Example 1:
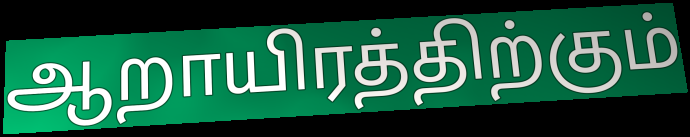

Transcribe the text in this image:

ஆறாயிரத்திற்கும்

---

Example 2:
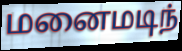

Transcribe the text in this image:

மனைமடிந்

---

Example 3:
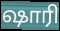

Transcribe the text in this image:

ஷாரி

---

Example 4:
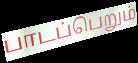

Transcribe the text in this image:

பாடப்பெறும்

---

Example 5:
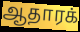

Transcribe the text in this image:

ஆதாரக்